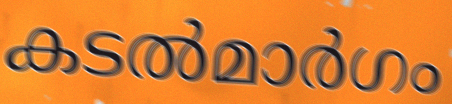
കടൽമാർഗം